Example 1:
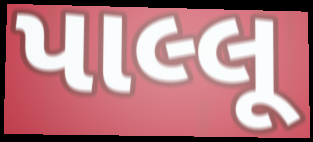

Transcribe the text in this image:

પાલ્લૂ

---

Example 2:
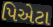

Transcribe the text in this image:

પિએટા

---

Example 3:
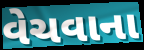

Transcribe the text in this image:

વેચવાના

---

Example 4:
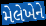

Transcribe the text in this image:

મેલેખેને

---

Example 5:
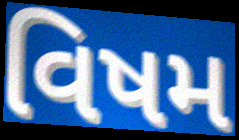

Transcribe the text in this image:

વિષમ